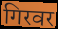
गिरवर